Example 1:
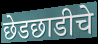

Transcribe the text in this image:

छेडछाडीचे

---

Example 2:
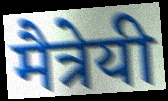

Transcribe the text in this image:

मैत्रेयी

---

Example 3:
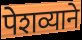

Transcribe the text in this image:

पेशव्याने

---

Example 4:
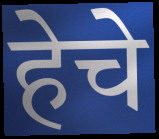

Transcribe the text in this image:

हेचे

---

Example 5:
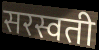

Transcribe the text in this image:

सरस्वती